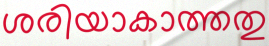
ശരിയാകാത്തതു